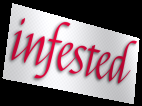
infested